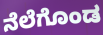
ನೆಲೆಗೊಂಡ